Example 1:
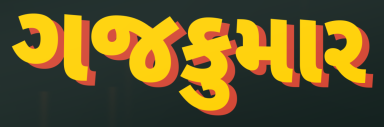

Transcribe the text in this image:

ગજકુમાર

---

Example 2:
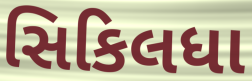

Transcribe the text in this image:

સિકિલધા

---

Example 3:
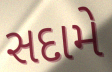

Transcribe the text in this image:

સદામે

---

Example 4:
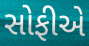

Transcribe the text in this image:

સોફીએ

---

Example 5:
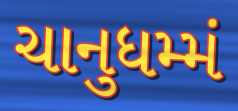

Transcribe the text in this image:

ચાનુધમ્મં